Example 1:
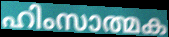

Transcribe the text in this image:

ഹിംസാത്മക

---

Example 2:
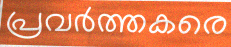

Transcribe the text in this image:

പ്രവർത്തകരെ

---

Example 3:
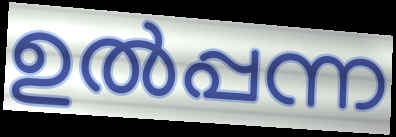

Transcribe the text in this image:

ഉൽപ്പന്ന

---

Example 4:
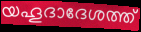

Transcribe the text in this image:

യഹൂദാദേശത്ത്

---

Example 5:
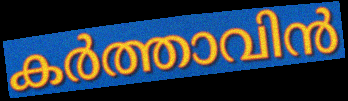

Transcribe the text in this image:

കർത്താവിൻ